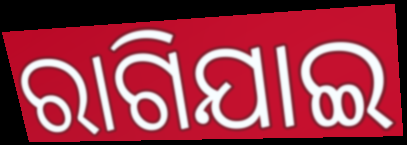
ରାଗିଯାଇ